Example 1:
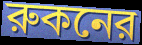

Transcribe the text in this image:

রুকনের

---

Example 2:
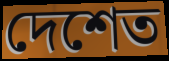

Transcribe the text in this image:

দেশেত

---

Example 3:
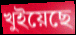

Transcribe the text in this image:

খুইয়েছে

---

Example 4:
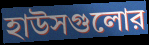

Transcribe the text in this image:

হাউসগুলোর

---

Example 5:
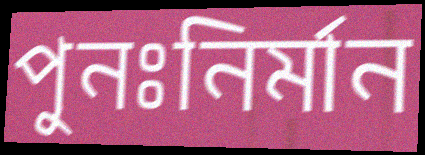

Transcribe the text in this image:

পুনঃনির্মান